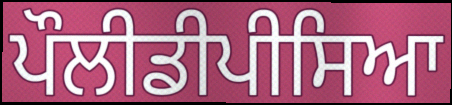
ਪੌਲੀਡੀਪੀਸਿਆ